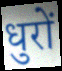
धुरों